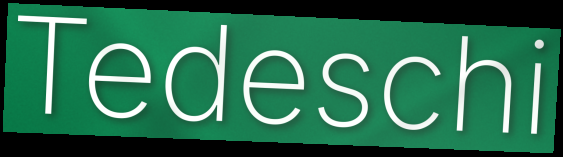
Tedeschi